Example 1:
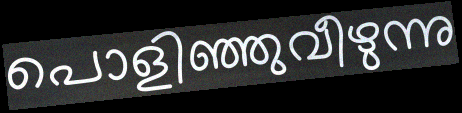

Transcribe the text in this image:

പൊളിഞ്ഞുവീഴുന്നു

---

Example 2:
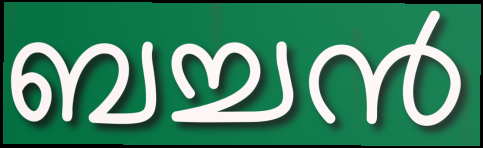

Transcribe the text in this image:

ബച്ചൻ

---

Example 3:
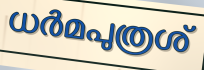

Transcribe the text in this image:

ധർമപുത്രശ്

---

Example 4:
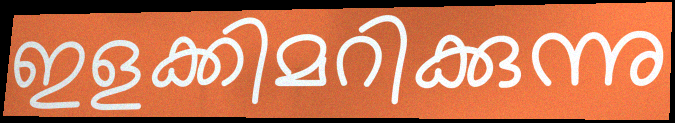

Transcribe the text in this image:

ഇളക്കിമറിക്കുന്നു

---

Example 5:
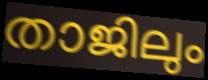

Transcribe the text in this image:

താജിലും